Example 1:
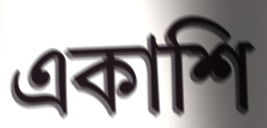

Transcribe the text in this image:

একাশি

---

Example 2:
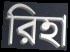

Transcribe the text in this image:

রিহা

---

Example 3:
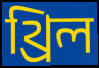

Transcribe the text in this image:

থ্রিল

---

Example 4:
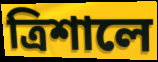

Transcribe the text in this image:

ত্রিশালে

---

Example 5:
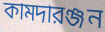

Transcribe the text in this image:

কামদারঞ্জন